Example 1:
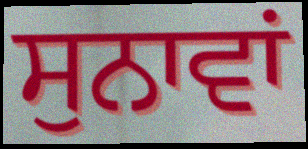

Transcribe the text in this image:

ਸੁਨਾਵਾਂ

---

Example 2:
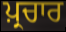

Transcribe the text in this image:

ਪ਼੍ਰਚਾਰ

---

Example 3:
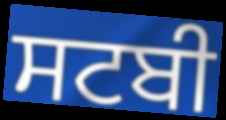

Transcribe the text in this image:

ਸਟਬੀ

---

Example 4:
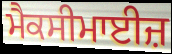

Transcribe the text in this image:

ਮੈਕਸੀਮਾਈਜ਼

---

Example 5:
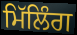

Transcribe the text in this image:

ਮਿੱਲਿੰਗ